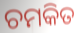
ଚମକିତ